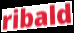
ribald